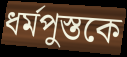
ধর্মপুস্তকে